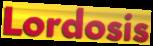
Lordosis